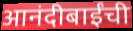
आनंदीबाईंची